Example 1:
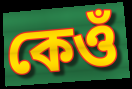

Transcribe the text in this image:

কেওঁ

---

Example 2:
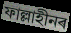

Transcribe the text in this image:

ফাল্লাহীনৰ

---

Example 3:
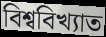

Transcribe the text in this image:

বিশ্ববিখ্যাত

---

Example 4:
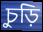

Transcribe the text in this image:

চুড়ি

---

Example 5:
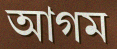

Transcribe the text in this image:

আগম